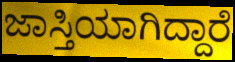
ಜಾಸ್ತಿಯಾಗಿದ್ದಾರೆ